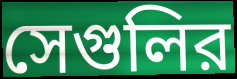
সেগুলির